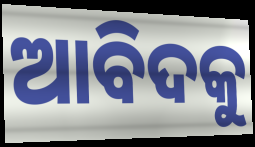
ଆବିଦକୁ